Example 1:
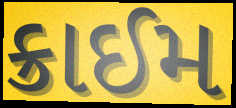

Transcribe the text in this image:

ક્રાઈમ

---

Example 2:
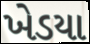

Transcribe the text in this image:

ખેડયા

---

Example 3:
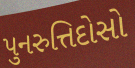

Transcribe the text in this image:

પુનરુત્તિદોસો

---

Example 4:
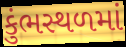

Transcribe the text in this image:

કુંભસ્થળમાં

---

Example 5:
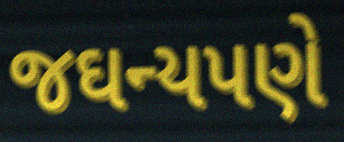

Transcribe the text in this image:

જઘન્યપણે